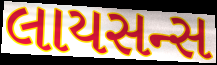
લાયસન્સ